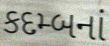
કદમ્બનાં